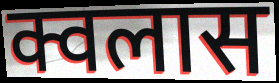
क्वलास